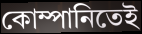
কোম্পানিতেই